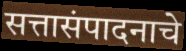
सत्तासंपादनाचे